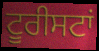
ਟੂਰੀਸਟਾਂ